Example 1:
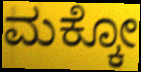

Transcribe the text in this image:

ಮಕ್ಕೋ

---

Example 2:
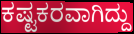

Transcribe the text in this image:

ಕಷ್ಟಕರವಾಗಿದ್ದು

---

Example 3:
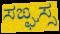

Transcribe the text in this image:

ಸಙ್ಘಸ್ಸ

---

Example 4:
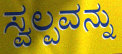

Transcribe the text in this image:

ಸ್ವಲ್ಪವನ್ನು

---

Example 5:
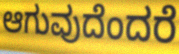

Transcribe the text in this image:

ಆಗುವುದೆಂದರೆ